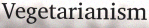
Vegetarianism